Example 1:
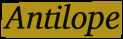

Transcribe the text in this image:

Antilope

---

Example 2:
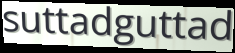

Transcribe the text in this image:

suttadguttad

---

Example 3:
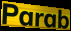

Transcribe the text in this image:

Parab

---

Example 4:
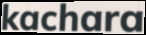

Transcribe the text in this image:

kachara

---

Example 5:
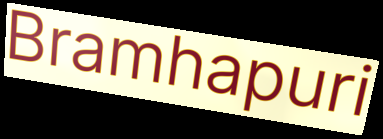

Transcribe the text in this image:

Bramhapuri